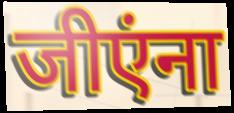
जीएंना